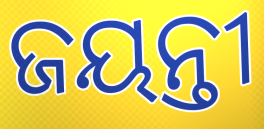
ଜୟନ୍ତୀ